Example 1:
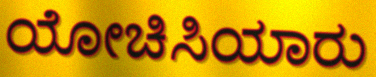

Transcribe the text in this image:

ಯೋಚಿಸಿಯಾರು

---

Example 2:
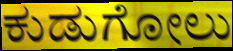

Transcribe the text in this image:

ಕುಡುಗೋಲು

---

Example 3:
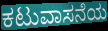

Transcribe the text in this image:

ಕಟುವಾಸನೆಯ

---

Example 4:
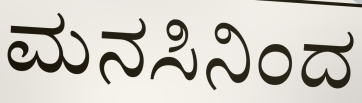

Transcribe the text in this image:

ಮನಸಿನಿಂದ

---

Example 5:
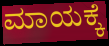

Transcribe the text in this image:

ಮಾಯಕ್ಕೆ